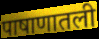
पाषाणातली